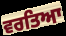
ਵਰਤਿਆ